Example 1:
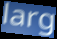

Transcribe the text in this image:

larg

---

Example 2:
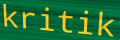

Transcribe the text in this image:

kritik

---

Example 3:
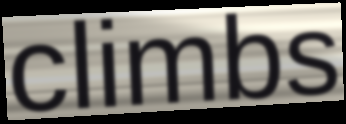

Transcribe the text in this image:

climbs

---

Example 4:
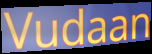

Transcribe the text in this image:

Vudaan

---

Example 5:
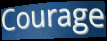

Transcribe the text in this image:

Courage